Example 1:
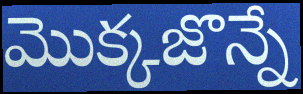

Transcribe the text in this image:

మొక్కజొన్నే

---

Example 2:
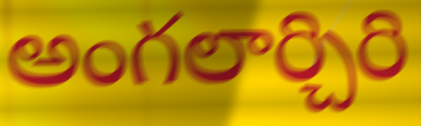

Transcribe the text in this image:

అంగలార్చిరి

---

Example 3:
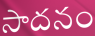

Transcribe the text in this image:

సాదనం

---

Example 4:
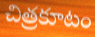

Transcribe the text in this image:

చిత్రకూటం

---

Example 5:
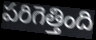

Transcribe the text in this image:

పరిగెత్తింది